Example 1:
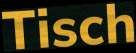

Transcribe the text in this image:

Tisch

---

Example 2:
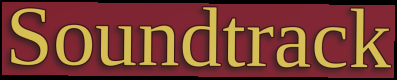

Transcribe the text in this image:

Soundtrack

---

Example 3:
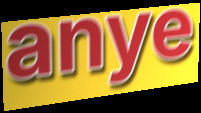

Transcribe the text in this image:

anye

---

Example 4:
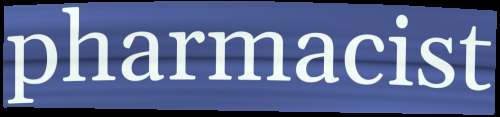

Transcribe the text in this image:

pharmacist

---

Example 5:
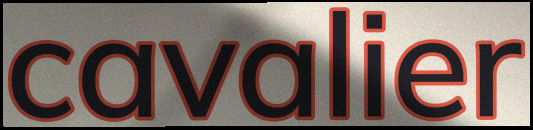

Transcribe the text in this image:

cavalier